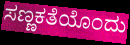
ಸಣ್ಣಕತೆಯೊಂದು